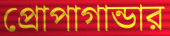
প্রোপাগান্ডার